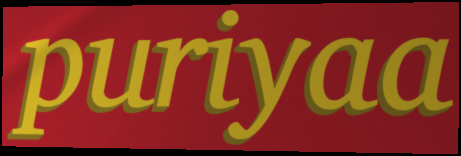
puriyaa